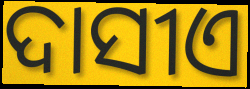
ଦାସୀଏ